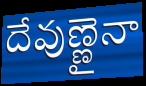
దేవుణ్ణైనా